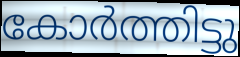
കോർത്തിട്ടു